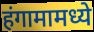
हंगामामध्ये